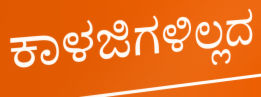
ಕಾಳಜಿಗಳಿಲ್ಲದ